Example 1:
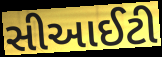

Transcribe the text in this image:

સીઆઈટી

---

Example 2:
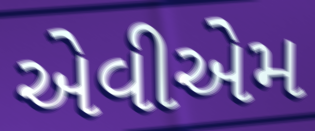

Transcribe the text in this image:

એવીએમ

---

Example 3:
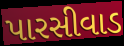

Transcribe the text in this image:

પારસીવાડ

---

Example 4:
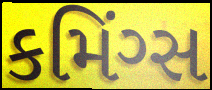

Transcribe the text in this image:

કમિંગ્સ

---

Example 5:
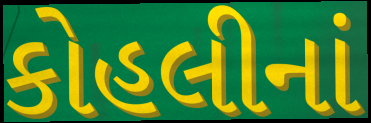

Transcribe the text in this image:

કોહલીનાં